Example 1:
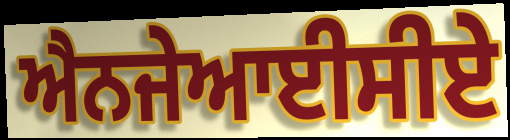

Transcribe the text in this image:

ਐਨਜੇਆਈਸੀਏ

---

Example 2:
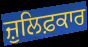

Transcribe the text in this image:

ਜ਼ੁਲਿਫ਼ਕਾਰ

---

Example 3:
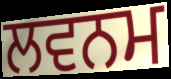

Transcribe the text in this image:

ਲਵਨਮ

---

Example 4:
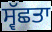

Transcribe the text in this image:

ਸ੍ਵੱਛਤਾ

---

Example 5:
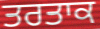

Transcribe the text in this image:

ਤਰਤਾਕ